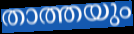
താത്തയും